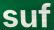
suf